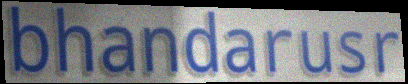
bhandarusr